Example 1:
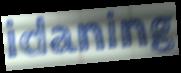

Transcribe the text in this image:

idaning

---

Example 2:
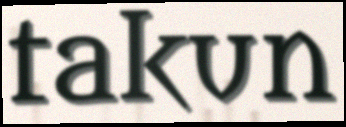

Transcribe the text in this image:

takun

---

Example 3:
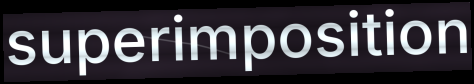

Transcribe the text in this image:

superimposition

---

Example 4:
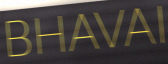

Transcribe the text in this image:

BHAVAI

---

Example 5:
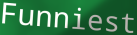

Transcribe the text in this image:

Funniest